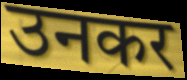
उनकर